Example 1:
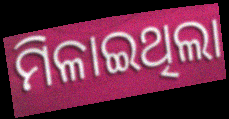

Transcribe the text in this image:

ମିଳାଇଥିଲା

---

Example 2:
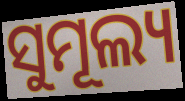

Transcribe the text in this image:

ସୁମୂଲ୍ୟ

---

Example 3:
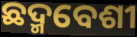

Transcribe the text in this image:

ଛଦ୍ମବେଶୀ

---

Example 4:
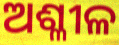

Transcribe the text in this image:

ଅଶ୍ଳୀଳ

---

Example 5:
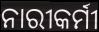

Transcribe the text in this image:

ନାରୀକର୍ମୀ